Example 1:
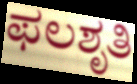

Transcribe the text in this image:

ಫಲಶೃತಿ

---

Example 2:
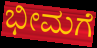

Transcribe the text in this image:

ಭೀಮಗೆ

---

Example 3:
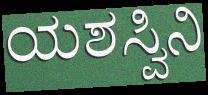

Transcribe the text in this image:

ಯಶಸ್ವಿನಿ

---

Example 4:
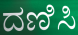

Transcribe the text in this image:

ದಣಿಸಿ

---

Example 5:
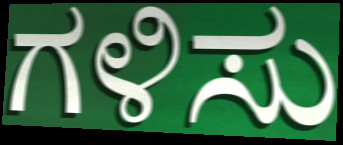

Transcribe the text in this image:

ಗಳಿಸು